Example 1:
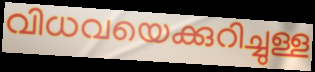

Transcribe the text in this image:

വിധവയെക്കുറിച്ചുള്ള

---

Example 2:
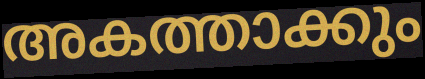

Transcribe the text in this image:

അകത്താക്കും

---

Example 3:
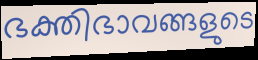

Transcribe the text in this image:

ഭക്തിഭാവങ്ങളുടെ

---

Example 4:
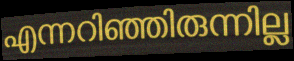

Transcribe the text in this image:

എന്നറിഞ്ഞിരുന്നില്ല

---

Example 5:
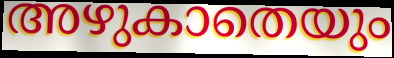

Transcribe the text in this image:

അഴുകാതെയും